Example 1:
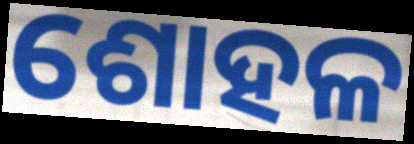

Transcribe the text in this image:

ଶୋହଳ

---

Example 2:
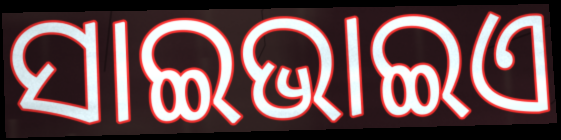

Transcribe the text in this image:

ସାଇଭାଇଏ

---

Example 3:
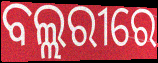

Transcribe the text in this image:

ବଲ୍ଲରୀରେ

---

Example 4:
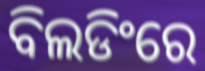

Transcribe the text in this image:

ବିଲଡିଂରେ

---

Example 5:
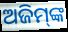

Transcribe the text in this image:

ଅଜିମ୍‌ଙ୍କ